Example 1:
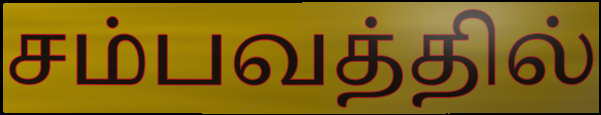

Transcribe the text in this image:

சம்பவத்தில்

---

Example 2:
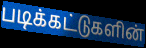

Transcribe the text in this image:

படிக்கட்டுகளின்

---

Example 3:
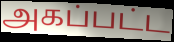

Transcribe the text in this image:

அகப்பட்ட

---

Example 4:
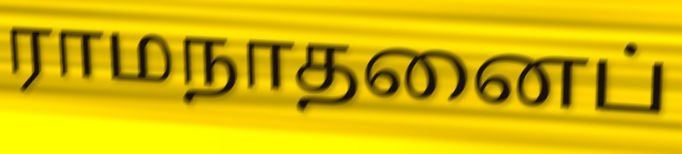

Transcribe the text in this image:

ராமநாதனைப்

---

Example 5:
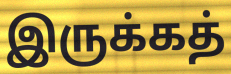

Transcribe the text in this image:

இருக்கத்